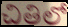
చితిలో